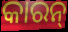
କାରନ୍